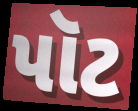
પૉટ